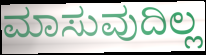
ಮಾಸುವುದಿಲ್ಲ